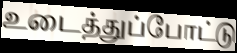
உடைத்துப்போட்டு